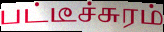
பட்டீச்சுரம்